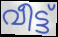
വീട്ട്